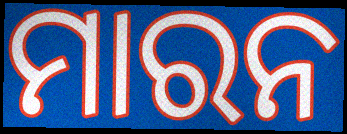
ମାରନ